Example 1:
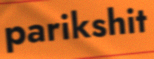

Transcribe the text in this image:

parikshit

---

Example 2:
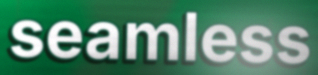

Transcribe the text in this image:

seamless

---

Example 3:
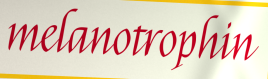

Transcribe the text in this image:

melanotrophin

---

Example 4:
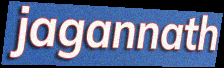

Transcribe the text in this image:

jagannath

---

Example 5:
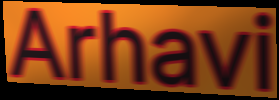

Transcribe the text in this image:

Arhavi